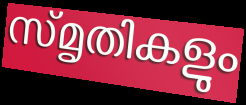
സ്മൃതികളും